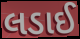
લડાઈ